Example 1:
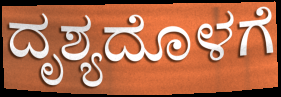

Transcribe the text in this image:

ದೃಶ್ಯದೊಳಗೆ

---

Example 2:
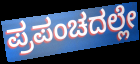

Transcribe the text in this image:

ಪ್ರಪಂಚದಲ್ಲೇ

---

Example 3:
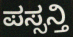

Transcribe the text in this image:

ಪಸ್ಸನ್ತಿ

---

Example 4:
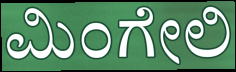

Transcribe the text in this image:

ಮಿಂಗೇಲಿ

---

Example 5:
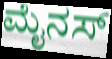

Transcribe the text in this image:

ಮೈನಸ್